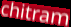
chitram